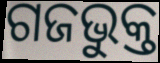
ଗଜଭୁକ୍ତ